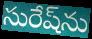
సురేష్‌ను